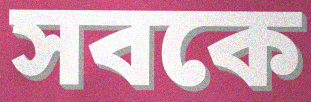
সবকে